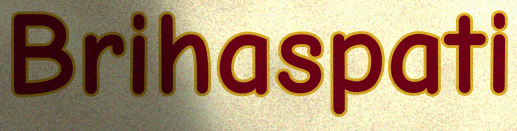
Brihaspati